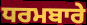
ਧਰਮਬਾਰੇ